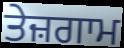
ਤੇਜ਼ਗਾਮ